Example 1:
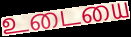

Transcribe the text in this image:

உடையை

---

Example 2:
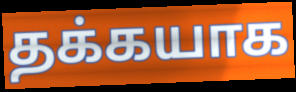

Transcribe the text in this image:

தக்கயாக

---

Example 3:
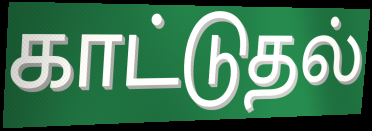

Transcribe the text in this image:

காட்டுதல்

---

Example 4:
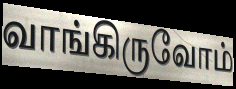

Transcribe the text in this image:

வாங்கிருவோம்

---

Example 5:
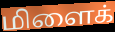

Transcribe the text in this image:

மிளைக்